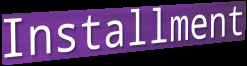
Installment